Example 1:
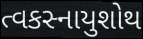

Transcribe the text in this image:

ત્વકસ્નાયુશોથ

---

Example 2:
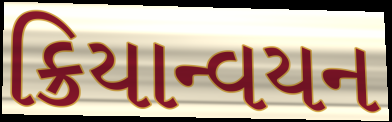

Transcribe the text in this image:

ક્રિયાન્વયન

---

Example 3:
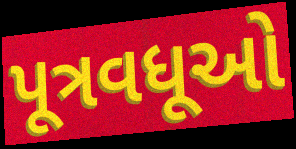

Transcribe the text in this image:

પૂત્રવધૂઓ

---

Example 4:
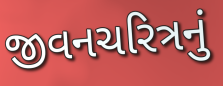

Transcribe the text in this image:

જીવનચરિત્રનું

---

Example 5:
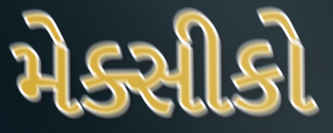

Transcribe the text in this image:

મેક્સીકો